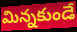
మిన్నకుండే